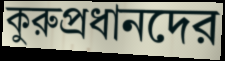
কুরুপ্রধানদের